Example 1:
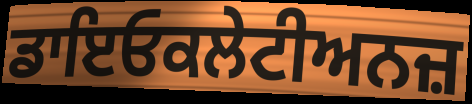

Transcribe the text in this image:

ਡਾਇਓਕਲੇਟੀਅਨਜ਼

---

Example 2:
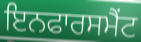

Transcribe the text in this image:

ਇਨਫਾਰਸਮੈਂਟ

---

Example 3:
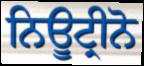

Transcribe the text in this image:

ਨਿਊਟ੍ਰੀਨੋ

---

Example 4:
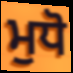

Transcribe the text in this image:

ਮੁਧੋ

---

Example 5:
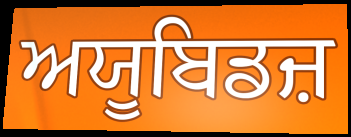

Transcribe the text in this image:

ਅਯੂਬਿਡਜ਼